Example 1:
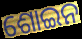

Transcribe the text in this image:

ଶୋଇନ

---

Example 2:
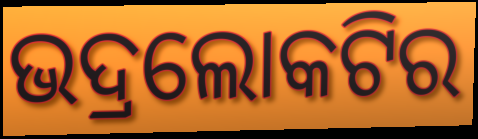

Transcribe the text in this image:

ଭଦ୍ରଲୋକଟିର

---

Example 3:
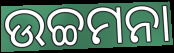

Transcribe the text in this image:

ଉଚ୍ଚମନା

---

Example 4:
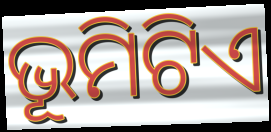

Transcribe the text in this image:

ଭୂମିଟିଏ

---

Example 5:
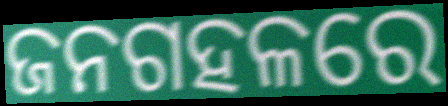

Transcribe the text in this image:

ଜନଗହଳରେ